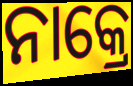
ନାକ୍ରେ